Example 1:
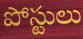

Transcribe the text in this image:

పోస్టులు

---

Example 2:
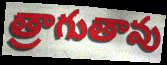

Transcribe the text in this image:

త్రాగుతావు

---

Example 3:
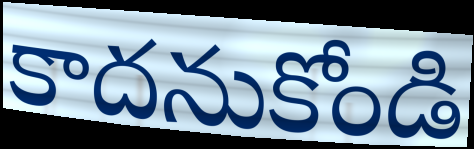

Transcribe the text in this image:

కాదనుకోండి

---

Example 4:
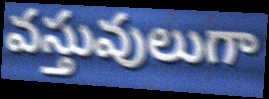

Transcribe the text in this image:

వస్తువులుగా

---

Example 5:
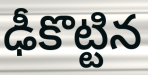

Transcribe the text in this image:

ఢీకొట్టిన